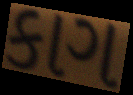
કાગ